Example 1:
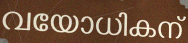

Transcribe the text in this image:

വയോധികന്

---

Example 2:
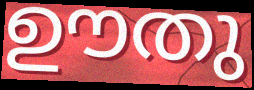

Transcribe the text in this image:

ഊതു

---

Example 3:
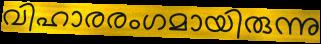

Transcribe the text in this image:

വിഹാരരംഗമായിരുന്നു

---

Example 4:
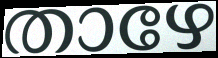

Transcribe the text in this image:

താഴേ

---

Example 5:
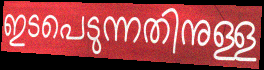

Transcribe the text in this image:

ഇടപെടുന്നതിനുള്ള